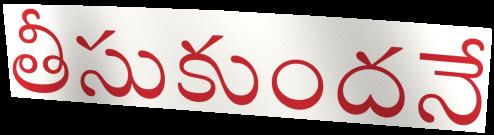
తీసుకుందనే